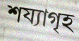
শয্যাগৃহ